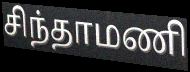
சிந்தாமணி